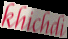
khichdi